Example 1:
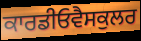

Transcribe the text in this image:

ਕਾਰਡੀਓਵੈਸਕੁਲਰ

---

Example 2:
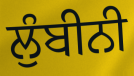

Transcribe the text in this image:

ਲੁੰਬੀਨੀ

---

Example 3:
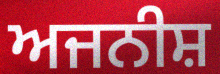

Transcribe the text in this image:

ਅਜਨੀਸ਼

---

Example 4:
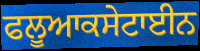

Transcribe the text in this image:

ਫਲੂਆਕਸੇਟਾਈਨ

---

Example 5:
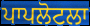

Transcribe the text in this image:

ਪਾਪਲੋਟਲਾ